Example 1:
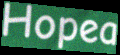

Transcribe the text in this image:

Hopea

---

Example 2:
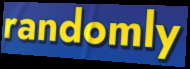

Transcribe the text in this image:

randomly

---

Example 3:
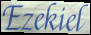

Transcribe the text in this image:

Ezekiel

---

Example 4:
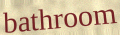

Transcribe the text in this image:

bathroom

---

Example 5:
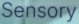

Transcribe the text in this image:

Sensory